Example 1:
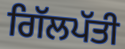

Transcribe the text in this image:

ਗਿੱਲਪੱਤੀ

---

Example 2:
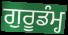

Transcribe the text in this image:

ਗੁਰੂਡੰਮ੍ਹ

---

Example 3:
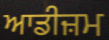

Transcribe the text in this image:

ਆਡੀਜ਼ਮ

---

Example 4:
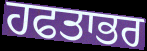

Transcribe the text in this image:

ਹਫਤਾਭਰ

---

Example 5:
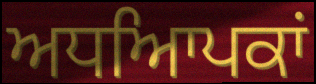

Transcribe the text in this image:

ਅਧਆਿਪਕਾਂ